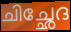
ചിച്ഛേദ